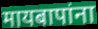
मायबापांना